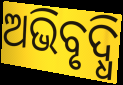
ଅଭିବୃଦ୍ଧି